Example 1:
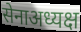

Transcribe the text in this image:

सेनाअध्यक्ष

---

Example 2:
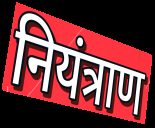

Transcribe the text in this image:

नियंत्राण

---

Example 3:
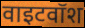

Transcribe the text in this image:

वाइटवॉश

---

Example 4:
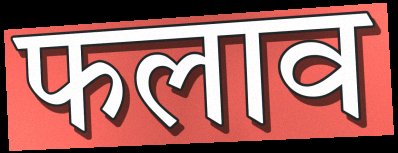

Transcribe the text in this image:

फलाव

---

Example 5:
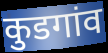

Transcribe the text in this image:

कुडगांव